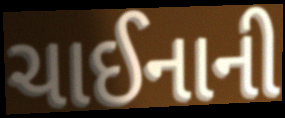
ચાઈનાની